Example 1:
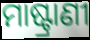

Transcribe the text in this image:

ମାଷ୍ଟ୍ରାଣୀ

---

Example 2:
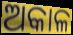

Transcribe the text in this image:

ଅକାଳ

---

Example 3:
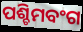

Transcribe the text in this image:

ପଶ୍ଚିମବଂଗ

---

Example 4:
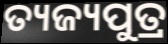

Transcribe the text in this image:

ତ୍ୟଜ୍ୟପୁତ୍ର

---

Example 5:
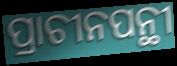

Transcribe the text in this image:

ପ୍ରାଚୀନପନ୍ଥୀ